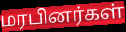
மரபினர்கள்